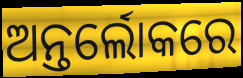
ଅନ୍ତର୍ଲୋକରେ